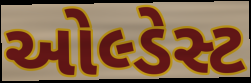
ઓલ્ડેસ્ટ